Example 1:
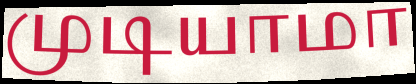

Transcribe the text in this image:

முடியாமா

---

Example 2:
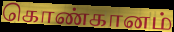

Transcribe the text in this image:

கொண்கானம்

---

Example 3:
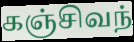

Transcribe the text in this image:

கஞ்சிவந்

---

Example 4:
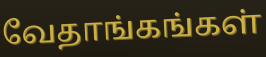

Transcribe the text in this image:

வேதாங்கங்கள்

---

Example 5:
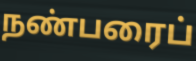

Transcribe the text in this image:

நண்பரைப்